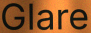
Glare